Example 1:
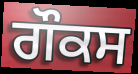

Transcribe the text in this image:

ਗੌਕਸ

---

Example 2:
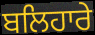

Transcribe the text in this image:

ਬਲਿਹਾਰੇ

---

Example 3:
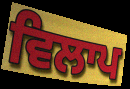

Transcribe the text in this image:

ਵਿਲਾਪ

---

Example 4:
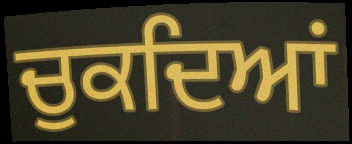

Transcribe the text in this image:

ਚੁਕਦਿਆਂ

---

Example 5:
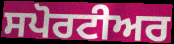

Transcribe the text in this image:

ਸਪੋਰਟੀਅਰ